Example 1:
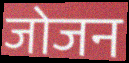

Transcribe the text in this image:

जोजन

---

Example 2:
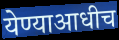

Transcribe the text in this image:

येण्याआधीच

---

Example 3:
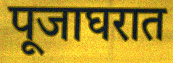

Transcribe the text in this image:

पूजाघरात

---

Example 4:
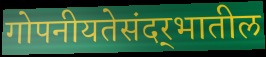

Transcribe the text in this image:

गोपनीयतेसंदर्भातील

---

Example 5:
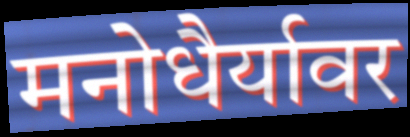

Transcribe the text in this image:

मनोधैर्यावर